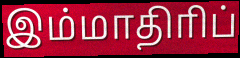
இம்மாதிரிப்